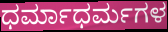
ಧರ್ಮಾಧರ್ಮಗಳ